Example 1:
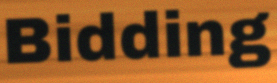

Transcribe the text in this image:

Bidding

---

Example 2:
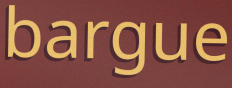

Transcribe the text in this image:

bargue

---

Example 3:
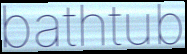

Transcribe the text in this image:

bathtub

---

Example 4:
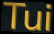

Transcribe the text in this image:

Tui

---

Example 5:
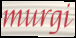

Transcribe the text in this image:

murgi